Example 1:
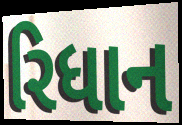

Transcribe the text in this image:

રિધાન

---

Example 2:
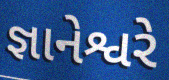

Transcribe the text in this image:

જ્ઞાનેશ્વરે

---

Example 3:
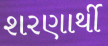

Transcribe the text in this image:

શરણાર્થી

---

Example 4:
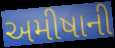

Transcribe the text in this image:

અમીષાની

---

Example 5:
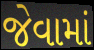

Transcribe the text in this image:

જેવામાં